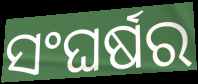
ସଂଘର୍ଷର